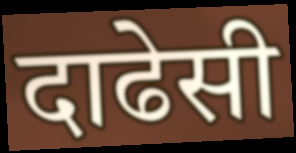
दाढेसी